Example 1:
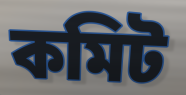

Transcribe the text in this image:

কমিট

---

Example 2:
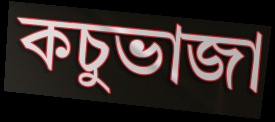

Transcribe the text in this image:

কচুভাজা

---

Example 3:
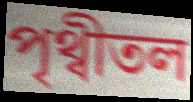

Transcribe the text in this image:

পৃথ্বীতল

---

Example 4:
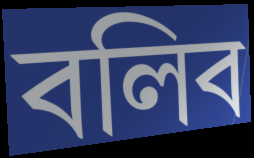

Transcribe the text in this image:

বলিব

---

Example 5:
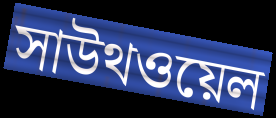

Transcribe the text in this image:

সাউথওয়েল